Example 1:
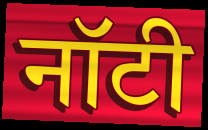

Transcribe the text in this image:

नॉटी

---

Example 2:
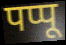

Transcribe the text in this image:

पप्पू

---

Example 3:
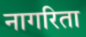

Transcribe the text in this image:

नागरिता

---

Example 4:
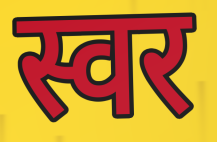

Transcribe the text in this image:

स्वर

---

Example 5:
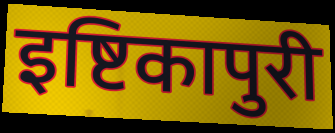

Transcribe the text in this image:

इष्टिकापुरी